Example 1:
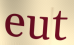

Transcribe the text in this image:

eut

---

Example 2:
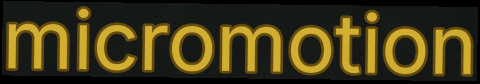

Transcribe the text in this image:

micromotion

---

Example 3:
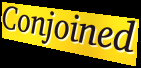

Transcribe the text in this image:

Conjoined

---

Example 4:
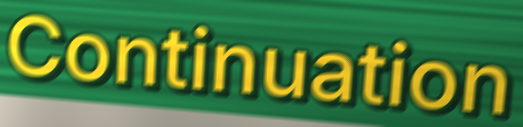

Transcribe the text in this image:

Continuation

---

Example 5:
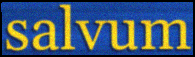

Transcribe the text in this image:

salvum